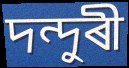
দন্দুৰী